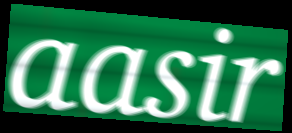
aasir